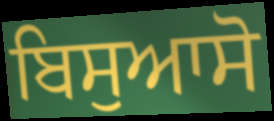
ਬਿਸੁਆਸੋ